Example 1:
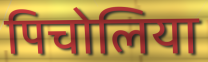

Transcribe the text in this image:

पिचोलिया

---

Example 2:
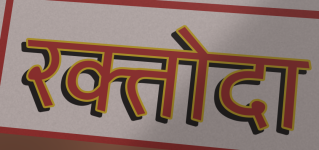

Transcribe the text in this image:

रक्तोदा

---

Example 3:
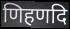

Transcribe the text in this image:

णिहणदि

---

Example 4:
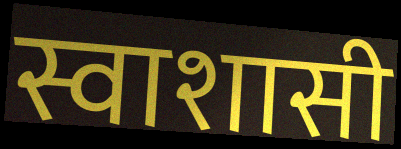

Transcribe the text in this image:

स्वाशासी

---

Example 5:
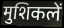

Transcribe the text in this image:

मुशिकलें